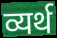
व्‍यर्थ